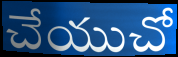
చేయుచో